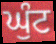
ਘੁੰਟ